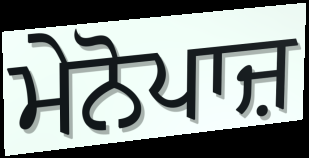
ਮੇਨੋਪਾਜ਼